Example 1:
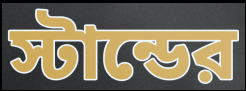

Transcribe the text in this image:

স্টান্ডের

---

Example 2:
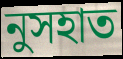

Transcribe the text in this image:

নুসহাত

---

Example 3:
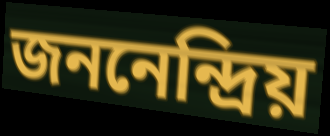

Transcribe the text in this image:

জননেন্দ্রিয়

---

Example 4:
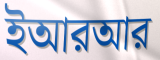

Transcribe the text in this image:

ইআরআর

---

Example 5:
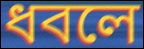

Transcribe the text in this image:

ধবলে